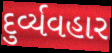
દુર્વ્યવહાર